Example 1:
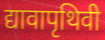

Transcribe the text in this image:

द्यावापृथिवी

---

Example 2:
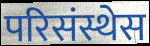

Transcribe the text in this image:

परिसंस्थेस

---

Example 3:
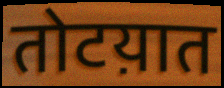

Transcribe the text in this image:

तोटय़ात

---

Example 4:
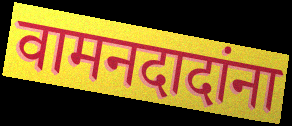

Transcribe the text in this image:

वामनदादांना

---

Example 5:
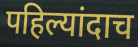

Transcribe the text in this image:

पहिल्यांदाच